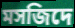
মসজিদে